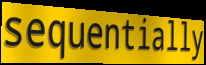
sequentially